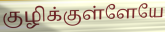
குழிக்குள்ளேயே